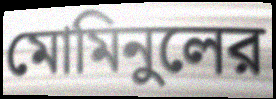
মোমিনুলের